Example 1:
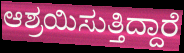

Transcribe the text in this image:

ಆಶ್ರಯಿಸುತ್ತಿದ್ದಾರೆ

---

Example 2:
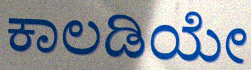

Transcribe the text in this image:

ಕಾಲಡಿಯೇ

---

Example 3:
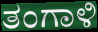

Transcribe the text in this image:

ತಂಗಾಳಿ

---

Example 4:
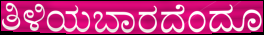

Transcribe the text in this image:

ತಿಳಿಯಬಾರದೆಂದೂ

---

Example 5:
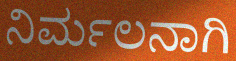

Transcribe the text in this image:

ನಿರ್ಮಲನಾಗಿ